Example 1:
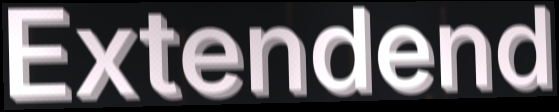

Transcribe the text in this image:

Extendend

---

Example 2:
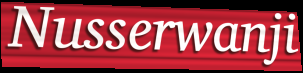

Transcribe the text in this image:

Nusserwanji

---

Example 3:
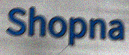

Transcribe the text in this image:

Shopna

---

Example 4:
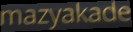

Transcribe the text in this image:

mazyakade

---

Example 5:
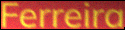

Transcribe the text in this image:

Ferreira